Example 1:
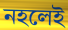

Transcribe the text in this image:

নহলেই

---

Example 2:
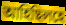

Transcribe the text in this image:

আহিছিলহে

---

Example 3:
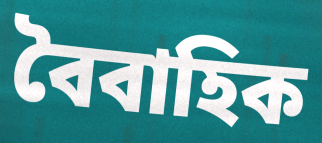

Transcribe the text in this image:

বৈবাহিক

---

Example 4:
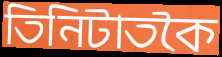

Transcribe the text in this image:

তিনিটাতকৈ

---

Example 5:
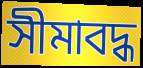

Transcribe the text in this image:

সীমাবদ্ধ